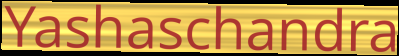
Yashaschandra